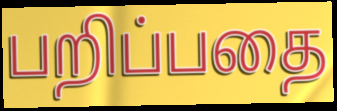
பறிப்பதை